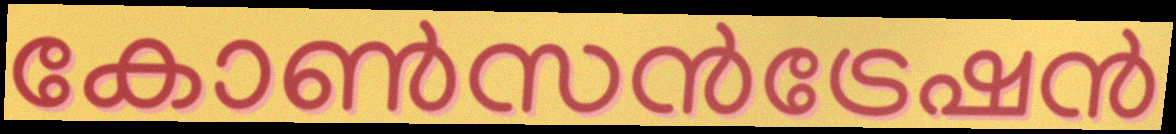
കോൺസൻട്രേഷൻ